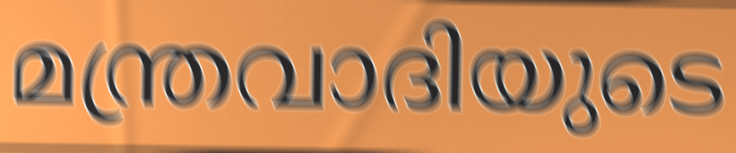
മന്ത്രവാദിയുടെ